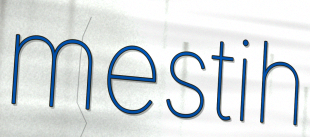
mestih